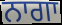
ਨਾਗਾ